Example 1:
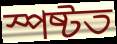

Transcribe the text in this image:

স্পষ্টত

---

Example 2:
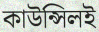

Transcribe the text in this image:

কাউন্সিলই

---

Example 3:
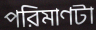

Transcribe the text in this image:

পরিমাণটা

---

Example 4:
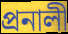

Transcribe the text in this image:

প্রনালী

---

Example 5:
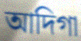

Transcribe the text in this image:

আদিগা